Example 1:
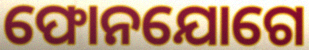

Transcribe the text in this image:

ଫୋନଯୋଗେ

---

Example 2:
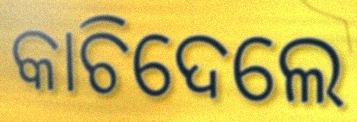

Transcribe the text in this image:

କାଚିଦେଲେ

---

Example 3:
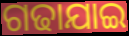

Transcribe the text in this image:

ଗଢାଯାଇ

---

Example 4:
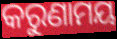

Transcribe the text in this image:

କରୁଣାମୟ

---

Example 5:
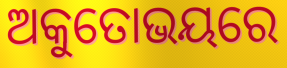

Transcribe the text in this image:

ଅକୁତୋଭୟରେ